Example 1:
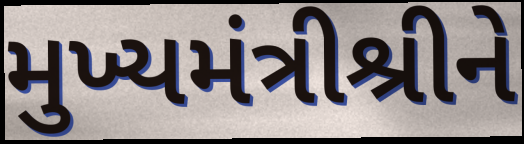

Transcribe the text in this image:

મુખ્યમંત્રીશ્રીને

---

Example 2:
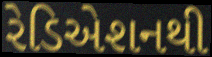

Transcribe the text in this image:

રેડિએશનથી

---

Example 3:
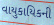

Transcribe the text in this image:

વાયુકાયિકની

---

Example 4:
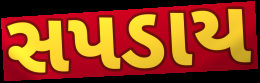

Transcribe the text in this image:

સપડાય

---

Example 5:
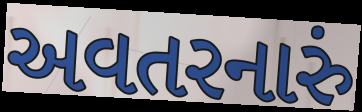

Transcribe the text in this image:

અવતરનારું